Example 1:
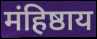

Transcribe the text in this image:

मंहिष्ठाय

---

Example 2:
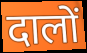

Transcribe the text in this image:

दालों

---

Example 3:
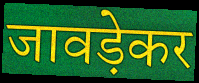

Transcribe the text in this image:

जावड़ेकर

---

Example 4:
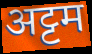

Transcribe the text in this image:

अट्टम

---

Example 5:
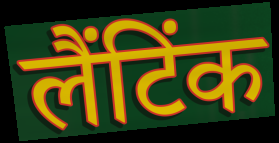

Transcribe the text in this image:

लैंटिंक